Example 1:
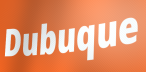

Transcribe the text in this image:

Dubuque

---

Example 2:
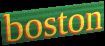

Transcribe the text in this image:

boston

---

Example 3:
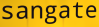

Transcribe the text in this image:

sangate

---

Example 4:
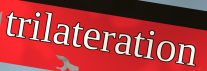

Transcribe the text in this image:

trilateration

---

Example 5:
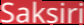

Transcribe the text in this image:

Saksiri